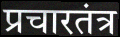
प्रचारतंत्र